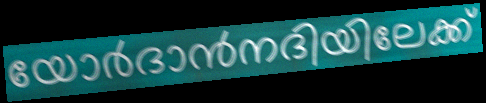
യോർദാൻനദിയിലേക്ക്